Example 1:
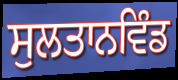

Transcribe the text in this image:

ਸੁਲਤਾਨਵਿੰਡ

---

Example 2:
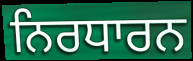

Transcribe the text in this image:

ਨਿਰਧਾਰਨ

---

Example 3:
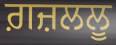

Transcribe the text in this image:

ਗ਼ਜ਼ਲਲੂ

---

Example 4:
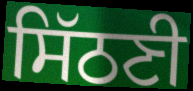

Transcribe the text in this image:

ਸਿੱਠਣੀ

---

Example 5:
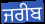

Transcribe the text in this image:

ਜਰੀਬ